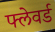
फ्लेवर्ड